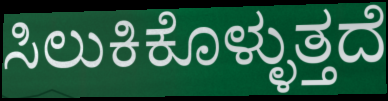
ಸಿಲುಕಿಕೊಳ್ಳುತ್ತದೆ